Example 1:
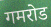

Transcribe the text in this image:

गमरोड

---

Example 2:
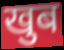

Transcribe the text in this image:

खुब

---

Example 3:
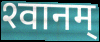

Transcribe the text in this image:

श्वानम्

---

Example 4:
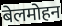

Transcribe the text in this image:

बेलमोहन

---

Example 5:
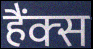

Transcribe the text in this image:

हैंक्‍स